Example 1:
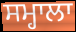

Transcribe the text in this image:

ਸਮ੍ਹ੍ਹਾਲਾ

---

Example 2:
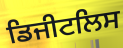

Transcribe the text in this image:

ਡਿਜੀਟਲਿਸ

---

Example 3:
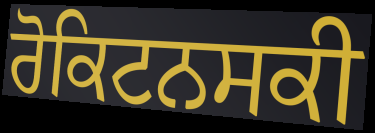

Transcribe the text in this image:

ਰੋਕਿਟਨਸਕੀ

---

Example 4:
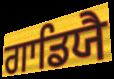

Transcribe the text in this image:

ਗਾਡਿਯੈ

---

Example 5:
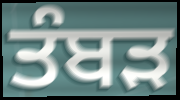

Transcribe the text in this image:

ਤੰਬੜ